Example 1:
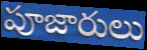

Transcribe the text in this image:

పూజారులు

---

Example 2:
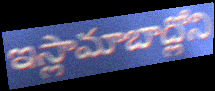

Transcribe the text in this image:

ఇస్లామాబాద్లోని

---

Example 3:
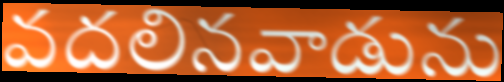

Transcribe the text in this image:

వదలినవాడును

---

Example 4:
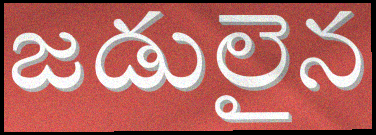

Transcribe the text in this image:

జడులైన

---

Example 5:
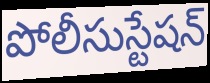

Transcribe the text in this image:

పోలీసుస్టేషన్